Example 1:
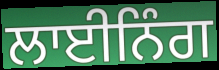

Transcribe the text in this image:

ਲਾਈਨਿੰਗ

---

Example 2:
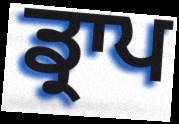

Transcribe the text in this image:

ਡ੍ਰਾਪ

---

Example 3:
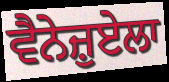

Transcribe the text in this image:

ਵੈਨੇਜ਼ੁਏਲਾ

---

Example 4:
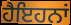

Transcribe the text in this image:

ਹੈਇਹਨਾਂ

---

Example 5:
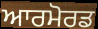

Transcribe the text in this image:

ਆਰਮੋਰਡ